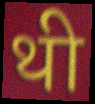
थी